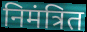
निमंत्रित